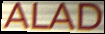
ALAD